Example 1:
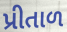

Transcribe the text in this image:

પ્રીતાળ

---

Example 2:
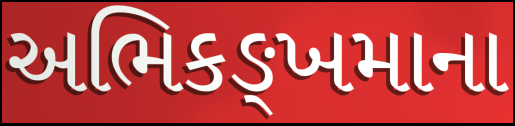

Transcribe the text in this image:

અભિકઙ્ખમાના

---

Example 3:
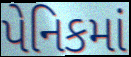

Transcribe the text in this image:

પેનિકમાં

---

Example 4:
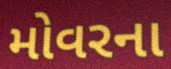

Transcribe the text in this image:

મોવરના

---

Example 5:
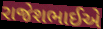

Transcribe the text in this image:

રાજેશભાઈએ